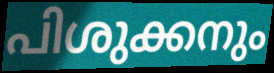
പിശുക്കനും